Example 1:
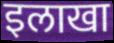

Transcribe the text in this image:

इलाखा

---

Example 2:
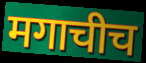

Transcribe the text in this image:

मगाचीच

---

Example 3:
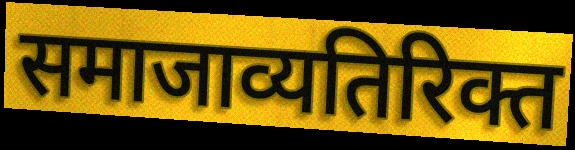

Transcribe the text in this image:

समाजाव्यतिरिक्त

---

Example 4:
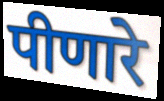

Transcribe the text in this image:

पीणारे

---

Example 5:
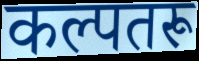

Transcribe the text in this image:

कल्पतरू